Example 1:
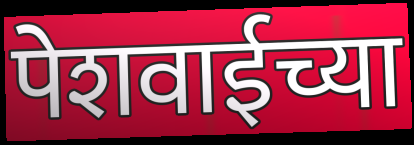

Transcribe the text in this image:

पेशवाईच्या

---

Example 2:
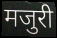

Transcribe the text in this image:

मजुरी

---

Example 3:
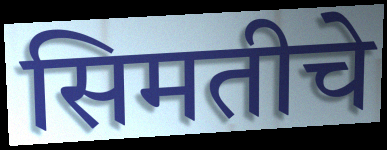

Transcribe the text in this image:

सिमतीचे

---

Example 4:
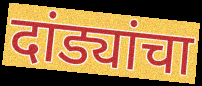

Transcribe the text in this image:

दांड्यांचा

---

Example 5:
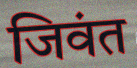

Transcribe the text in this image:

जिवंत